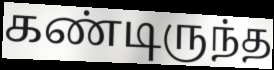
கண்டிருந்த